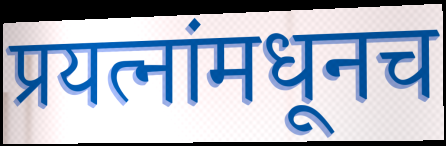
प्रयत्नांमधूनच